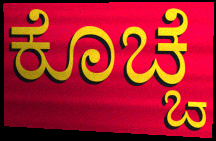
ಕೊಚ್ಚೆ